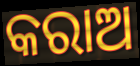
କରାଅ